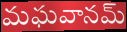
మఘవానమ్